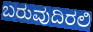
ಬರುವುದಿರಲಿ